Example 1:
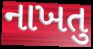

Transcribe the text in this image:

નાખતુ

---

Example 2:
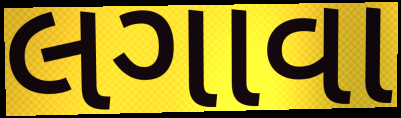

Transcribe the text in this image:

લગાવા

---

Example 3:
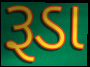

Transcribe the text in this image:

રૂડા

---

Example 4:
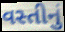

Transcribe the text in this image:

વસ્તીનું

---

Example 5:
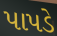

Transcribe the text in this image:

પાપડે